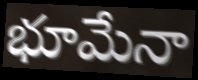
భూమేనా